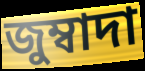
জুম্বাদা